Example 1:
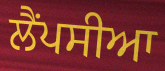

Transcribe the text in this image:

ਲੈਂਪਸੀਆ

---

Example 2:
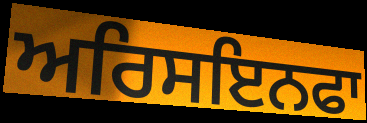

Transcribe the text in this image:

ਅਰਿਸਇਨਫਾ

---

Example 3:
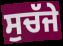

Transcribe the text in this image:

ਸੁਚੱਜੇ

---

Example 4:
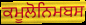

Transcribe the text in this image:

ਕਮੂਲੋਨਿਮਬਸ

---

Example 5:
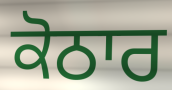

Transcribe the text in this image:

ਕੋਠਾਰ